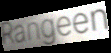
Rangeen